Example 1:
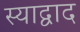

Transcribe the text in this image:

स्याद्वाद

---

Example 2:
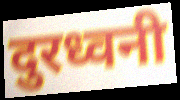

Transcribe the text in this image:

दुरध्वनी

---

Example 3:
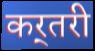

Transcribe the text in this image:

कर्तरी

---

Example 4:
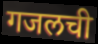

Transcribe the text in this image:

गजलची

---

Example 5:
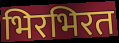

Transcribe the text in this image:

भिरभिरत